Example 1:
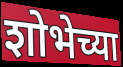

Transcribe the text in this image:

शोभेच्या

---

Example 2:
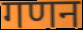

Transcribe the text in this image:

गणन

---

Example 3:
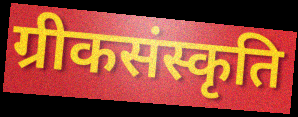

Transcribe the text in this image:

ग्रीकसंस्कृति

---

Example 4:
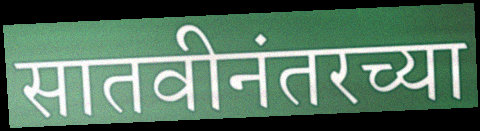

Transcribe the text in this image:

सातवीनंतरच्या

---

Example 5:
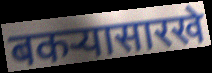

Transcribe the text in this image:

बकऱ्यासारखे